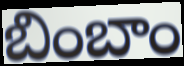
బింబాం